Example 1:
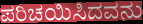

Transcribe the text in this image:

ಪರಿಚಯಿಸಿದವನು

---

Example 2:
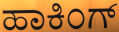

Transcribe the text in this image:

ಹಾಕಿಂಗ್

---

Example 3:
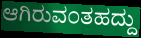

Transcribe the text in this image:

ಆಗಿರುವಂತಹದ್ದು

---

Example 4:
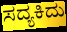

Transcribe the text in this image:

ಸದ್ಯಕಿದು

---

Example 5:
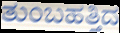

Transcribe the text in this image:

ತುಂಬಹತ್ತಿದ